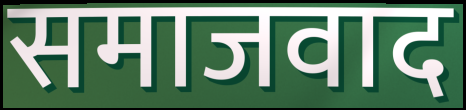
समाजवाद